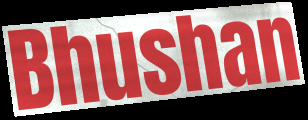
Bhushan